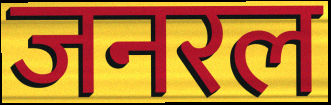
जनरल